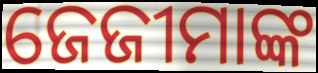
ଜେଜୀମାଙ୍କ